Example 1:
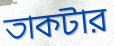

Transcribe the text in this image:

তাকটার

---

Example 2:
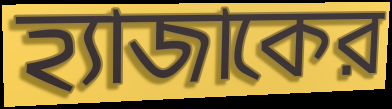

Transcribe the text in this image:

হ্যাজাকের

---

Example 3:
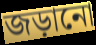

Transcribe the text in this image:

জড়ানো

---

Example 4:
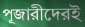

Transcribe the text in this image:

পূজারীদেরই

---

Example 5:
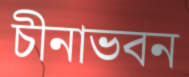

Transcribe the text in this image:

চীনাভবন